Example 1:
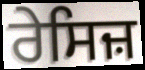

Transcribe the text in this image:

ਰੇਸਿਜ਼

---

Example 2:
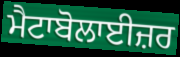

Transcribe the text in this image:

ਮੈਟਾਬੋਲਾਈਜ਼ਰ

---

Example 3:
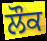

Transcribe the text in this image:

ਲੌਕ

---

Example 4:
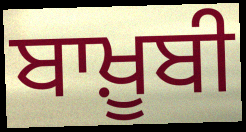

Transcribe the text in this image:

ਬਾਖ਼ੂਬੀ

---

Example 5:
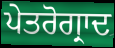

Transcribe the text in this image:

ਪੇਤਰੋਗ੍ਰਾਦ